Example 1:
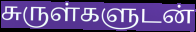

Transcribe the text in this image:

சுருள்களுடன்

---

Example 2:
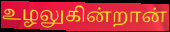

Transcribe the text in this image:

உழலுகின்றான்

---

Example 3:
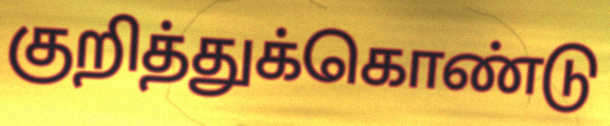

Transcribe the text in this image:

குறித்துக்கொண்டு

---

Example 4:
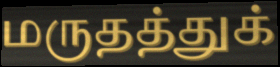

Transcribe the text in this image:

மருதத்துக்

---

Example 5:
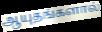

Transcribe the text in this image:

ஆயுதங்களால்